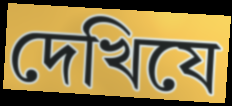
দেখিযে